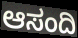
ಆಸಂದಿ